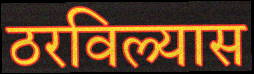
ठरविल्यास